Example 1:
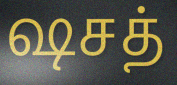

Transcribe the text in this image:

ஷசத்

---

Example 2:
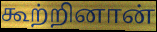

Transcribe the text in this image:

கூற்றினான்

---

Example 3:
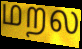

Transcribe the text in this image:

மறல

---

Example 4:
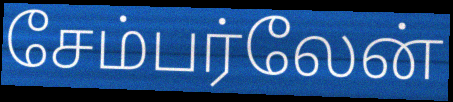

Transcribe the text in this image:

சேம்பர்லேன்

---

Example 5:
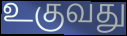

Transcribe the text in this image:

உகுவது